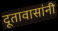
दूतावासांनी